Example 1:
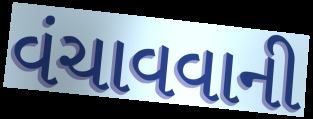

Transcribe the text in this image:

વંચાવવાની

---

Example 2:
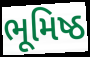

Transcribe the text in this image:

ભૂમિષ્ઠ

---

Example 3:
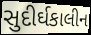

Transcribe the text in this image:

સુદીર્ઘકાલીન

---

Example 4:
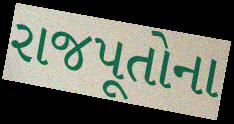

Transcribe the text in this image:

રાજપૂતોના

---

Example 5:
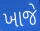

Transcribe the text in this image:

ખાજે